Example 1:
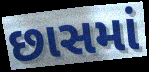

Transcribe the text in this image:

છાસમાં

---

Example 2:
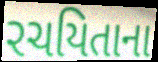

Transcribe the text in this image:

રચયિતાના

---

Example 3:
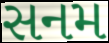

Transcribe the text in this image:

સનમ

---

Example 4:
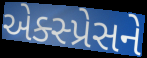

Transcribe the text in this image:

એક્સ્પ્રેસને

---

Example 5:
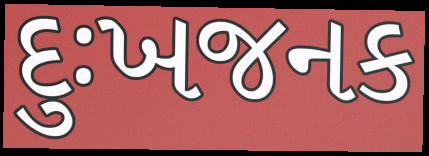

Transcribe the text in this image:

દુઃખજનક